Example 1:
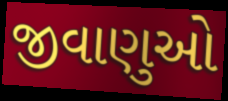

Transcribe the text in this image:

જીવાણુઓ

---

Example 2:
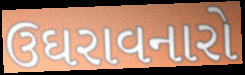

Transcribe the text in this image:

ઉઘરાવનારો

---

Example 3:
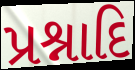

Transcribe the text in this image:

પ્રશ્નાદિ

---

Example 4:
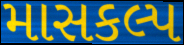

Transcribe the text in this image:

માસકલ્પ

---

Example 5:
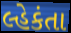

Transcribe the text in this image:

લ્હેકંતા